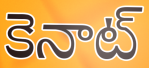
కెనాట్